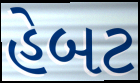
હેબટ